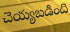
చెయ్యబడింది